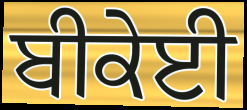
ਬੀਕੇਈ